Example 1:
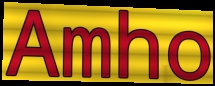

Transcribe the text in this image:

Amho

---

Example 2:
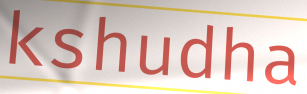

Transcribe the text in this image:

kshudha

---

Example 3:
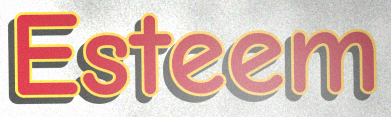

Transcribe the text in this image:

Esteem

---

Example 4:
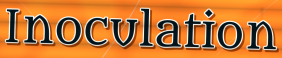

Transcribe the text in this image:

Inoculation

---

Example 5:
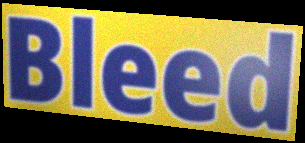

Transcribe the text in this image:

Bleed